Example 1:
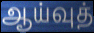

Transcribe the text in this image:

ஆய்வுத்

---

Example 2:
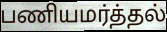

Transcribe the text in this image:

பணியமர்த்தல்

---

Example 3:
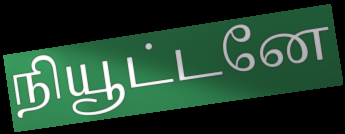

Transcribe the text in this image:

நியூட்டனே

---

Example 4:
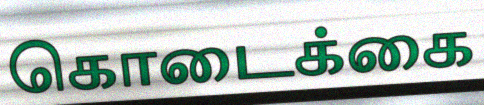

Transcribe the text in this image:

கொடைக்கை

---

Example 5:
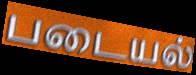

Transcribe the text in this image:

படையல்